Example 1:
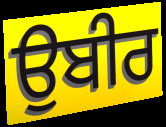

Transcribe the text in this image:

ਉਬੀਰ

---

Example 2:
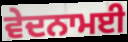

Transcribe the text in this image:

ਵੇਦਨਾਮਈ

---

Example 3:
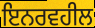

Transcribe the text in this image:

ਇਨਰਵਹੀਲ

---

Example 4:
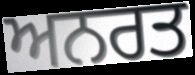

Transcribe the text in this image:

ਅਨਰਤ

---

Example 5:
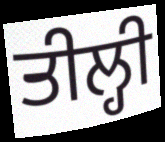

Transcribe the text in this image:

ਤੀਲ੍ਹੀ